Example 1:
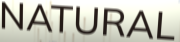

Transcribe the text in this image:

NATURAL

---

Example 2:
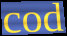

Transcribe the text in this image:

cod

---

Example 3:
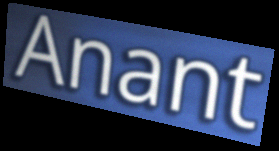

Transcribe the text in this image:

Anant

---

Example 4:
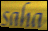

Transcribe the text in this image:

saha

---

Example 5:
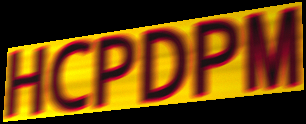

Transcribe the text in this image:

HCPDPM